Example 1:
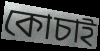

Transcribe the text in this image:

কোচাই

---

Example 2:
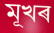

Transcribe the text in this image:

মূখৰ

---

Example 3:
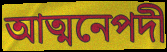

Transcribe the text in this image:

আত্মনেপদী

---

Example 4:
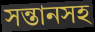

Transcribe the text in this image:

সন্তানসহ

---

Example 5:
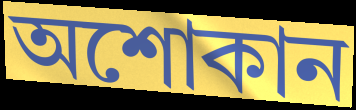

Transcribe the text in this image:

অশোকান